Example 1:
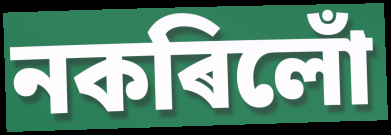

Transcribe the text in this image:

নকৰিলোঁ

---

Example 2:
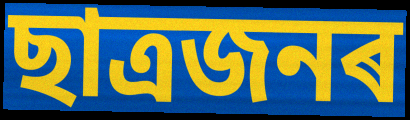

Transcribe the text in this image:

ছাত্ৰজনৰ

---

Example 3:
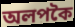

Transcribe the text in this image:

অলপকৈ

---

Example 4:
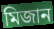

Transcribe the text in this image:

মিজান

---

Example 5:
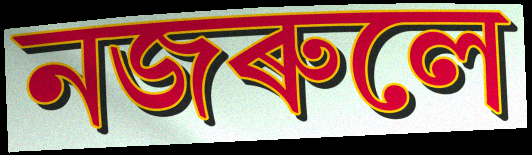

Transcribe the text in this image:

নজৰুলে